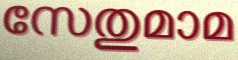
സേതുമാമ